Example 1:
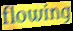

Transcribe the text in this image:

flowing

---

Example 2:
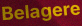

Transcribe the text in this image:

Belagere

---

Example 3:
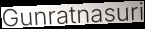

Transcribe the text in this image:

Gunratnasuri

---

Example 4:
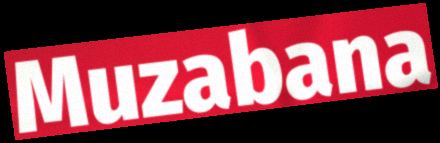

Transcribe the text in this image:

Muzabana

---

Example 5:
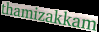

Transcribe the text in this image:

thamizakkam